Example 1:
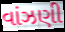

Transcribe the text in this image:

વાંઝણી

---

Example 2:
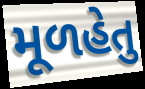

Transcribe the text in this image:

મૂળહેતુ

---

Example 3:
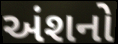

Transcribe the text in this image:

અંશનો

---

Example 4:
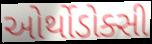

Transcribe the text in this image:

ઓર્થોડોક્સી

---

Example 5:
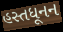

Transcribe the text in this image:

હસ્તધૂનન